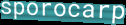
sporocarp